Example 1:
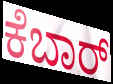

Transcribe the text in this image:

ಕೆಬಾರ್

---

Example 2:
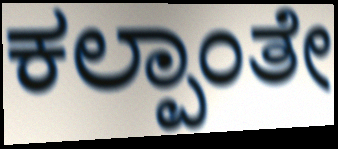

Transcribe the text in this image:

ಕಲ್ಪಾಂತೇ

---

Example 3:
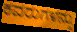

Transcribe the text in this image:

ಕವರುಗಳನ್ನು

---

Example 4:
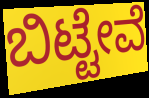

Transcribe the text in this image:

ಬಿಟ್ಟೇವೆ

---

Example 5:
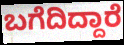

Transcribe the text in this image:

ಬಗೆದಿದ್ದಾರೆ